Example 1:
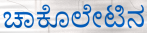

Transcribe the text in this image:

ಚಾಕೊಲೇಟಿನ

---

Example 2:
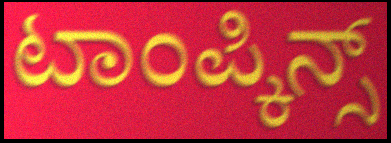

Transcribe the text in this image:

ಟಾಂಪ್ಕಿನ್ಸ್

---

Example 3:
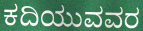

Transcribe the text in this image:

ಕದಿಯುವವರ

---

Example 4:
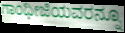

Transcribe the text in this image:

ಗಾಂಧೀಜಿಯವರನ್ನೂ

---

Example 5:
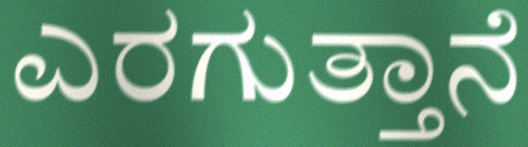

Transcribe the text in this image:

ಎರಗುತ್ತಾನೆ